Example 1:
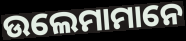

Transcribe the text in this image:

ଉଲେମାମାନେ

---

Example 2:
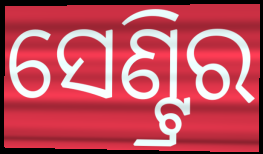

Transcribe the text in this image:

ସେଣ୍ଟ୍ରିର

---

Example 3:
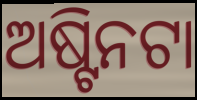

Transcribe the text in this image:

ଅଷ୍ଟିନଟା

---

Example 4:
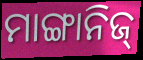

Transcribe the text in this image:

ମାଙ୍ଗାନିଜ୍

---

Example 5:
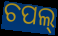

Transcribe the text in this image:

ଚପଲ୍